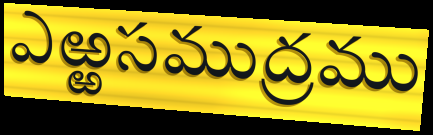
ఎఱ్ఱసముద్రము